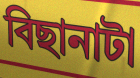
বিছানাটা